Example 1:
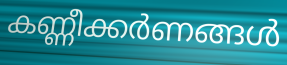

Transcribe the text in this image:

കണ്ണീക്കർണങ്ങൾ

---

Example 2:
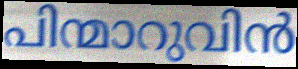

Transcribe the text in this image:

പിന്മാറുവിൻ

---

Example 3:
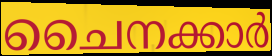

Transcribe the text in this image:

ചൈനക്കാർ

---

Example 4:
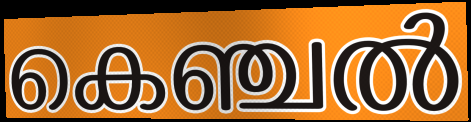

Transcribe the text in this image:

കെഞ്ചൽ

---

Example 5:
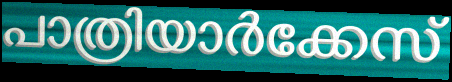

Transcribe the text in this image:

പാത്രിയാർക്കേസ്